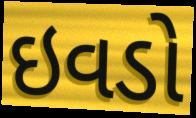
ઇવડો